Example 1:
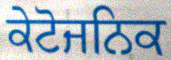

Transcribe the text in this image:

ਕੇਟੋਜਨਿਕ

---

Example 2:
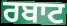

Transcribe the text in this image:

ਰਬਾਟ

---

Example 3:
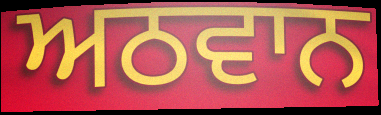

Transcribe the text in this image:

ਅਠਵਾਨ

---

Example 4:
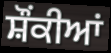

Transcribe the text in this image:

ਸ਼ੌਂਕੀਆਂ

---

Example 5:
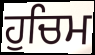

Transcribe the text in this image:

ਹੁਚਿਮ